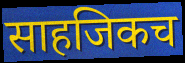
साहजिकच